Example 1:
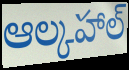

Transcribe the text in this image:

ఆల్కహాల్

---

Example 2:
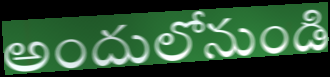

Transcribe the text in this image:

అందులోనుండి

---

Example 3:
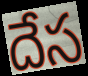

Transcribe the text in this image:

దేస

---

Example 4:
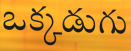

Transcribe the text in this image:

ఒక్కడుగు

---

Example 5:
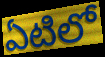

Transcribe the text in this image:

ఏటిలో